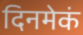
दिनमेकं